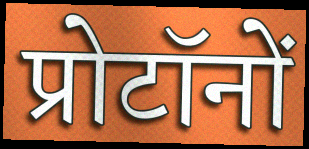
प्रोटॉनों